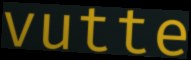
vutte